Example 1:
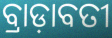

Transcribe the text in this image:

ବ୍ରାଡ଼ାବତୀ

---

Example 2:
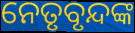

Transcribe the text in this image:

ନେତୃବୃନ୍ଦଙ୍କ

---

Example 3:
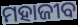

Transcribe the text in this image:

ମହାଜୀବ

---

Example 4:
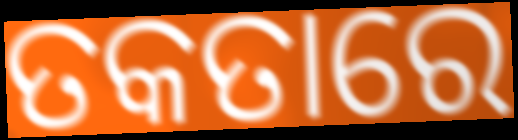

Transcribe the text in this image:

ତକତାରେ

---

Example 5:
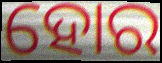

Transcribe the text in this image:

ହୋର